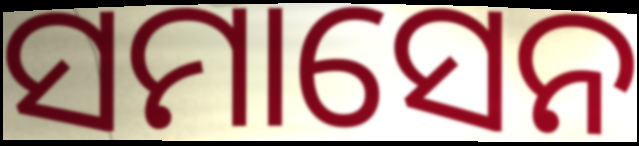
ସମାସେନ